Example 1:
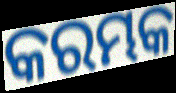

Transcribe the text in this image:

କରମ୍ଭକ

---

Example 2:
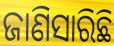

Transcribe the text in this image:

ଜାଣିସାରିଛି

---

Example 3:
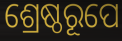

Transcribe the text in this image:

ଶ୍ରେଷ୍ଠରୂପେ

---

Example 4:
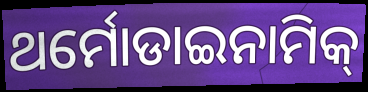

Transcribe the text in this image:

ଥର୍ମୋଡାଇନାମିକ୍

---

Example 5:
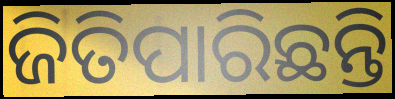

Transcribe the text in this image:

ଜିତିପାରିଛନ୍ତି